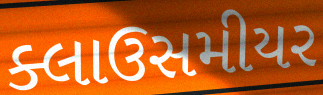
ક્લાઉસમીયર